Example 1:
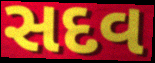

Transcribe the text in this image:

સદવ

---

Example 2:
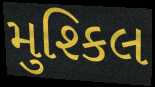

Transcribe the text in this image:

મુશ્કિલ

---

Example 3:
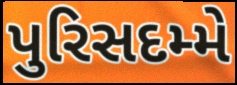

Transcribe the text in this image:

પુરિસદમ્મે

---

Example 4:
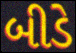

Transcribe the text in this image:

બીડે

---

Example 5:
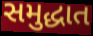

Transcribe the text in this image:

સમુદ્ધાત